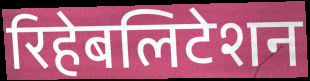
रिहेबलिटेशन